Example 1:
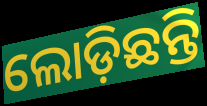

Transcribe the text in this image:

ଲୋଡ଼ିଛନ୍ତି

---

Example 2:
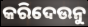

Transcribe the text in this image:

କରିଦେଉନୁ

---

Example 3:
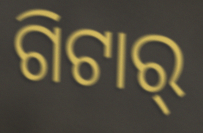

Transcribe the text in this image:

ଗିଟାର୍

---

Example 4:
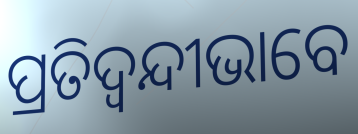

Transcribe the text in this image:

ପ୍ରତିଦ୍ୱନ୍ଦୀଭାବେ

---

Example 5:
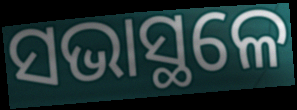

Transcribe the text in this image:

ସଭାସ୍ଥଳେ